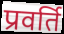
प्रवर्ति